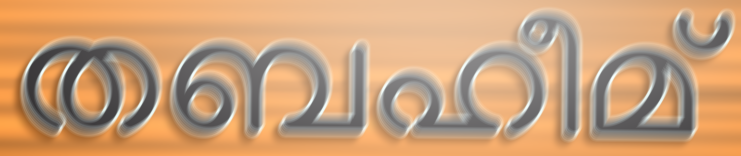
തബഹീമ്